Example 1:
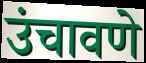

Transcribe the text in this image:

उंचावणे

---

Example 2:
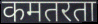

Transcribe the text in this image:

कमतरता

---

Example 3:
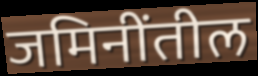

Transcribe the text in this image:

जमिनींतील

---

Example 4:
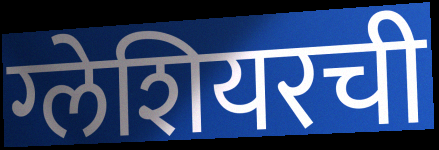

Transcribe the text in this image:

ग्लेशियरची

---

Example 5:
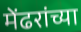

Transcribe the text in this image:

मेंढरांच्या